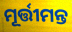
ମୂର୍ତ୍ତୀମନ୍ତ